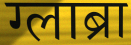
ग्लाब्रा